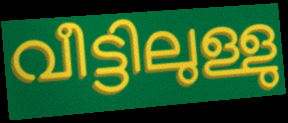
വീട്ടിലുള്ളു